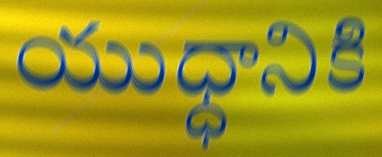
యుధ్ధానికి